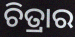
ଚିତ୍ରାର